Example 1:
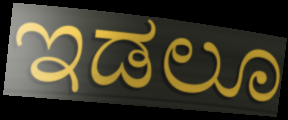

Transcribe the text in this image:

ಇಡಲೂ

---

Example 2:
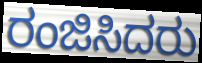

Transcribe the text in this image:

ರಂಜಿಸಿದರು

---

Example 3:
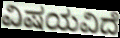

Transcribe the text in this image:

ವಿಷಯವಿದೆ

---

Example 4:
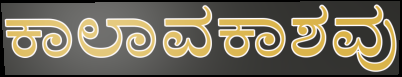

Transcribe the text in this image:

ಕಾಲಾವಕಾಶವು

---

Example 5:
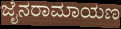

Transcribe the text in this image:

ಜೈನರಾಮಾಯಣ